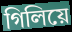
গিলিয়ে